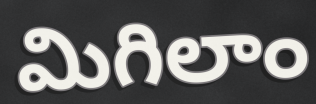
మిగిలాం